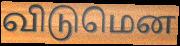
விடுமென